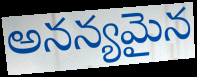
అనన్యమైన